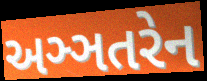
અઞ્ઞતરેન